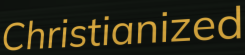
Christianized